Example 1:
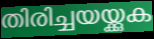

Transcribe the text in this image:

തിരിച്ചയയ്ക്കുക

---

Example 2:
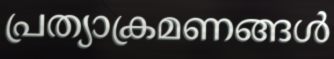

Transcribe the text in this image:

പ്രത്യാക്രമണങ്ങൾ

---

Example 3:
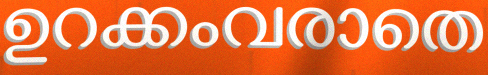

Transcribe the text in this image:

ഉറക്കംവരാതെ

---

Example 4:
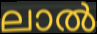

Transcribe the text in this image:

ലാൽ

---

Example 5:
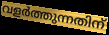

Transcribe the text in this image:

വളർത്തുന്നതിന്